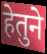
हेतुने